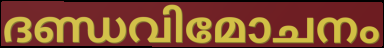
ദണ്ഡവിമോചനം